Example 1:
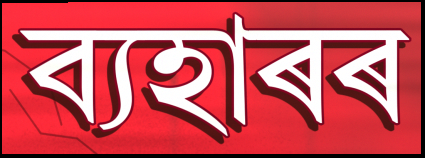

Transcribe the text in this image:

ব্যহাৰৰ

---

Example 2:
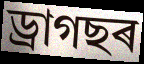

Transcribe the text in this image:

ড্ৰাগছৰ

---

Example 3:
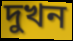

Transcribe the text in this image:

দুখন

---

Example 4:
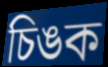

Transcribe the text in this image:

চিঙক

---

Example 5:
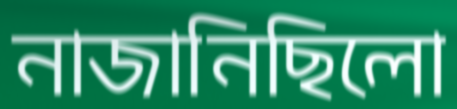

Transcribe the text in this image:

নাজানিছিলো